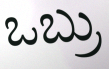
ಒಬ್ರು